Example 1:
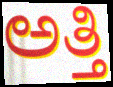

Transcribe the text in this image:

ಅತ್ತಿ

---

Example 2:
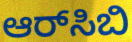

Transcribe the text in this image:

ಆರ್‌ಸಿಬಿ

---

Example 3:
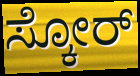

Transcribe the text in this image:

ಸ್ಕೋರ್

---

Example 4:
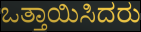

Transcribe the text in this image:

ಒತ್ತಾಯಿಸಿದರು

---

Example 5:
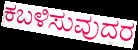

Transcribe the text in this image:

ಕಬಳಿಸುವುದರ